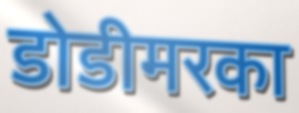
डोडीमरका